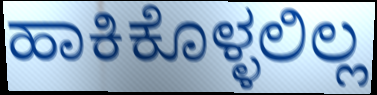
ಹಾಕಿಕೊಳ್ಳಲಿಲ್ಲ